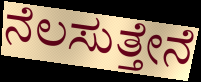
ನೆಲಸುತ್ತೇನೆ